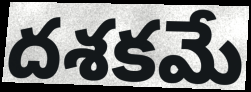
దశకమే